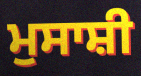
ਮੁਸਾਸ਼ੀ